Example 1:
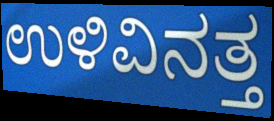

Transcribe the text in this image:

ಉಳಿವಿನತ್ತ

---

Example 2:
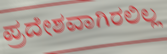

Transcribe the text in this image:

ಪ್ರದೇಶವಾಗಿರಲಿಲ್ಲ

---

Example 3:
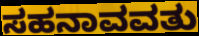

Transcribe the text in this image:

ಸಹನಾವವತು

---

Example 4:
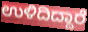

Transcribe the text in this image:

ಉಳಿದಿದ್ದಾರೆ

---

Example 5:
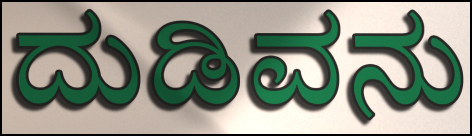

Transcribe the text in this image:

ದುಡಿವನು